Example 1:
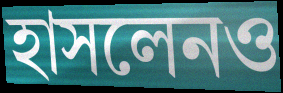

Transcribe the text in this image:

হাসলেনও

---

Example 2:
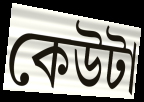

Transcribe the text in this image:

কেউটা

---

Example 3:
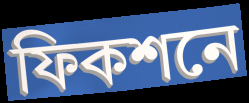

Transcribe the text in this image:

ফিকশনে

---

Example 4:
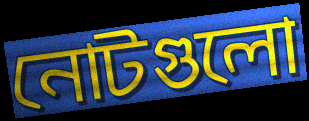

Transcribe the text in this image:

নোটগুলো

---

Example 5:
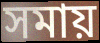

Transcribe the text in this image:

সমায়